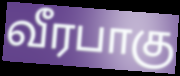
வீரபாகு